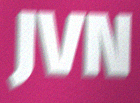
JVN